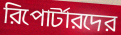
রিপোর্টারদের